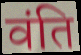
वंति